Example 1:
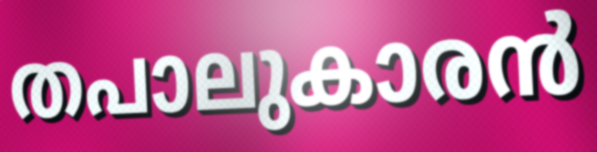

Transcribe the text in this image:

തപാലുകാരൻ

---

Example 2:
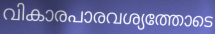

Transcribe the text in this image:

വികാരപാരവശ്യത്തോടെ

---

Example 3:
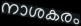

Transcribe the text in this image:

നാശകരം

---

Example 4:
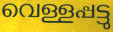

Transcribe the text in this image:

വെള്ളപ്പട്ടു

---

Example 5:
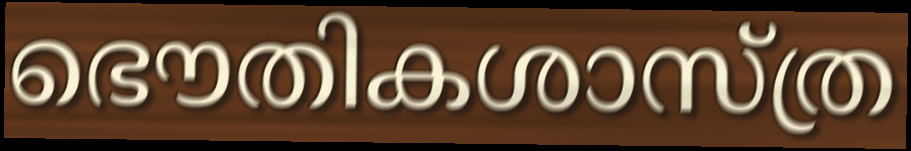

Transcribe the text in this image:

ഭൌതികശാസ്ത്ര